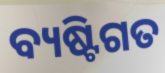
ବ୍ୟଷ୍ଟିଗତ